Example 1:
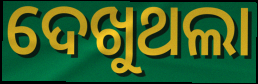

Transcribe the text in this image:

ଦେଖୁଥଲା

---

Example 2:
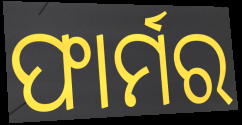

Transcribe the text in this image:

ଫାର୍ମର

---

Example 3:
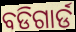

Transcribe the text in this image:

ବଡିଗାର୍ଡ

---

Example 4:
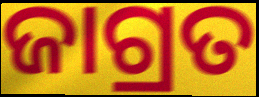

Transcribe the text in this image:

ଜାଗ୍ରତ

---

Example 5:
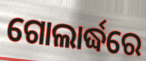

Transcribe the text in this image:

ଗୋଲାର୍ଦ୍ଧରେ